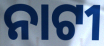
ନାଟୀ